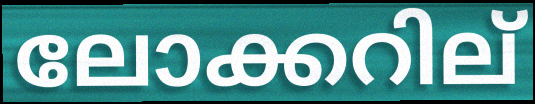
ലോക്കറില്